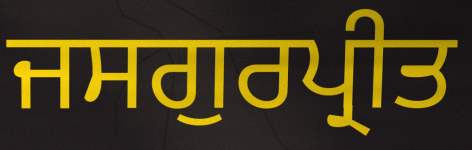
ਜਸਗੁਰਪ੍ਰੀਤ